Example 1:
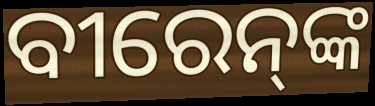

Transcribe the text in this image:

ବୀରେନ୍‍ଙ୍କ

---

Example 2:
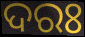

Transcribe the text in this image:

ଦରଃ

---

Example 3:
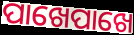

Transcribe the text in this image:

ପାଖେପାଖେ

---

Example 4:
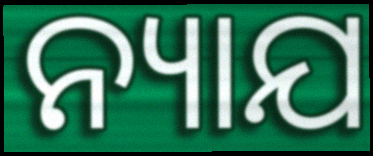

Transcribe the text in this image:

ନ୍ୟାଯ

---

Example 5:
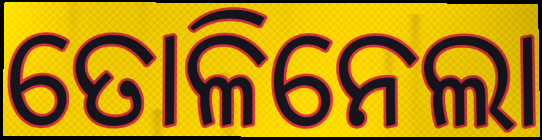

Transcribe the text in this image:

ତୋଳିନେଲା